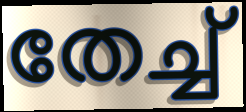
തേച്ച്